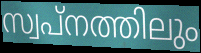
സ്വപ്നത്തിലും